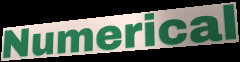
Numerical